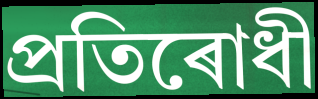
প্ৰতিৰোধী